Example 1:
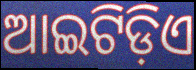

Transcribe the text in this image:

ଆଇଟିଡ଼ିଏ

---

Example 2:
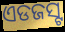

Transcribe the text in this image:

ଏଡଜସ୍ଟ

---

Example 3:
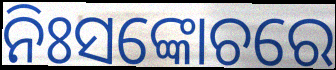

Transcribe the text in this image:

ନିଃସଙ୍କୋଚରେ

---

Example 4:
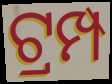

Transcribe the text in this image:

ଟ୍ରମ୍ପ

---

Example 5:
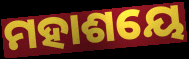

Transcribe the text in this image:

ମହାଶୟେ